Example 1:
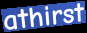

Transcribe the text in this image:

athirst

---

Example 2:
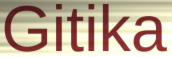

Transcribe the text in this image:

Gitika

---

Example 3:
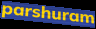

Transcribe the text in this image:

parshuram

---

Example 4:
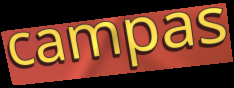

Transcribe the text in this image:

campas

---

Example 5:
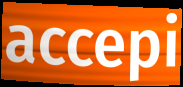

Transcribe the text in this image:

accepi